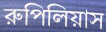
রুপিলিয়াস